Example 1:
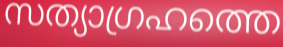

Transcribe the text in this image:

സത്യാഗ്രഹത്തെ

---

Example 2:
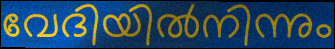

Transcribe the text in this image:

വേദിയിൽനിന്നും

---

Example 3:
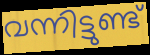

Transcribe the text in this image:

വന്നിട്ടുണ്ട്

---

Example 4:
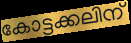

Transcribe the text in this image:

കോട്ടക്കലിന്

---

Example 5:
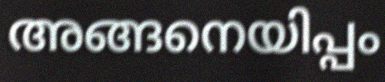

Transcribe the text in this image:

അങ്ങനെയിപ്പം